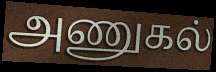
அணுகல்